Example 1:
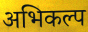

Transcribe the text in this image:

अभिकल्प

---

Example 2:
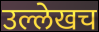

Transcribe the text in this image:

उल्लेखच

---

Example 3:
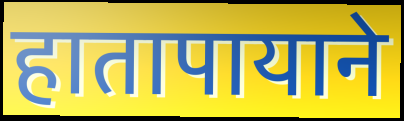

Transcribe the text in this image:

हातापायाने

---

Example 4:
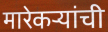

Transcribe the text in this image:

मारेकऱ्यांची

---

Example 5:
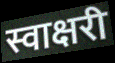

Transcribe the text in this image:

स्वाक्षरी